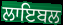
ਲਾਇਬਲ